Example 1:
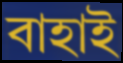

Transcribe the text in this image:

বাহাই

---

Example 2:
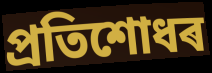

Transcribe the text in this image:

প্ৰতিশোধৰ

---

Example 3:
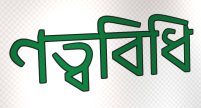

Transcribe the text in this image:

ণত্ববিধি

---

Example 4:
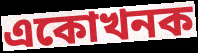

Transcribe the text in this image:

একোখনক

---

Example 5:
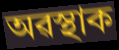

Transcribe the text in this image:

অৱস্থাক